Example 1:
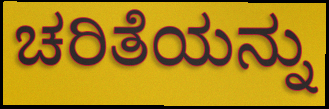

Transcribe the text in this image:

ಚರಿತೆಯನ್ನು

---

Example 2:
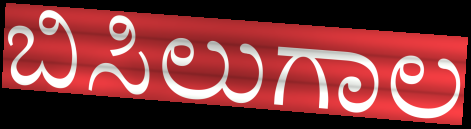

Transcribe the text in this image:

ಬಿಸಿಲುಗಾಲ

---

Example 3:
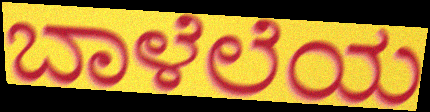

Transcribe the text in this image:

ಬಾಳೆಲೆಯ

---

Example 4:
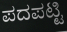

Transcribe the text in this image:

ಪದಪಟ್ಟಿ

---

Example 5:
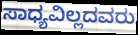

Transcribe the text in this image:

ಸಾಧ್ಯವಿಲ್ಲದವರು